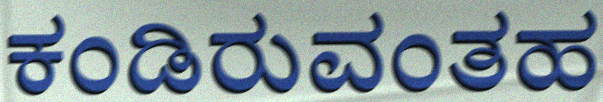
ಕಂಡಿರುವಂತಹ